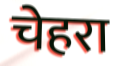
चेहरा